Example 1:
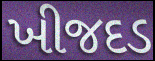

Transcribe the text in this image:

ખીજદડ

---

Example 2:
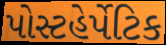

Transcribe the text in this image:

પોસ્ટહેર્પેટિક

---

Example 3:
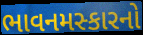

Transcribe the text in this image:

ભાવનમસ્કારનો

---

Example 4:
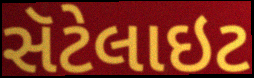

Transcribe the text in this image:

સૅટેલાઇટ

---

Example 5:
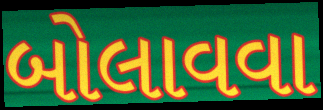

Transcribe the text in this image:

બોલાવવા